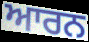
ਆਰਨ